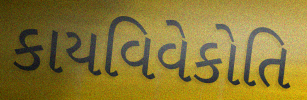
કાયવિવેકોતિ